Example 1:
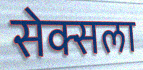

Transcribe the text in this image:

सेक्सला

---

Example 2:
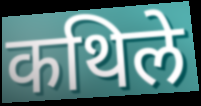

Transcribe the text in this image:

कथिले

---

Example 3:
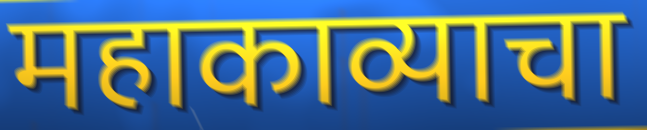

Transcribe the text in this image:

महाकाव्याचा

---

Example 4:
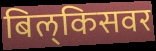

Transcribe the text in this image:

बिल्किसवर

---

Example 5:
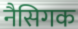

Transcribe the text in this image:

नैसिगक